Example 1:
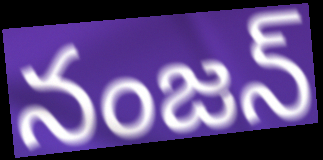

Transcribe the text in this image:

నంజన్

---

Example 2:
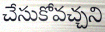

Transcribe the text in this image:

చేసుకోవచ్చని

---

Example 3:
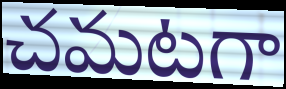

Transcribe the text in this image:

చమటగా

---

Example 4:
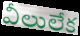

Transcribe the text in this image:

వీలులేక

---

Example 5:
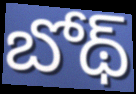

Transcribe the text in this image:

బోథ్